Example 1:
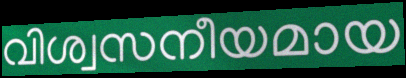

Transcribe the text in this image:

വിശ്വസനീയമായ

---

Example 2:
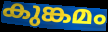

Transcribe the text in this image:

കുങ്കമം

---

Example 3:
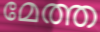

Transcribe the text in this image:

മേത്ത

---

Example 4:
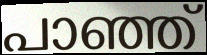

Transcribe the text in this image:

പാഞ്ഞ്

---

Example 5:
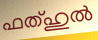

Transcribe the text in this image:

ഫത്ഹുൽ